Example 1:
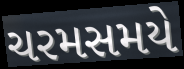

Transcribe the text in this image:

ચરમસમયે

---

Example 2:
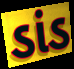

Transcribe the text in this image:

ડાંડ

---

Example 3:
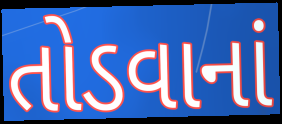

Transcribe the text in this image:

તોડવાનાં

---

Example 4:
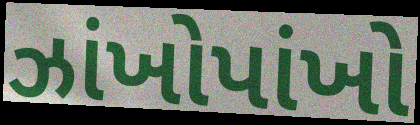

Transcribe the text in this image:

ઝાંખોપાંખો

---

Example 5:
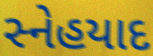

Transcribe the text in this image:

સ્નેહયાદ